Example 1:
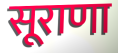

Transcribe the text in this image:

सूराणा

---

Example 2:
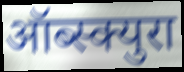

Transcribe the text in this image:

ऑब्स्क्युरा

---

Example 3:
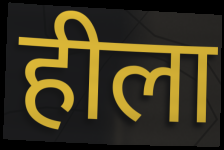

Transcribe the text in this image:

हीला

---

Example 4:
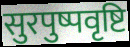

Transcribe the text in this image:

सुरपुष्पवृष्टि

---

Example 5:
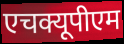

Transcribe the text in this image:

एचक्यूपीएम